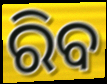
ରିବ